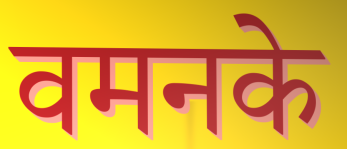
वमनके